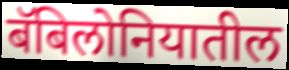
बॅबिलोनियातील